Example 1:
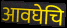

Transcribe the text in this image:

आवघेचि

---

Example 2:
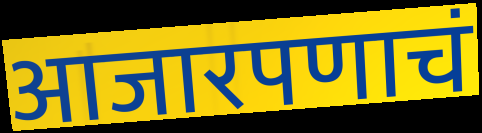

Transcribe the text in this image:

आजारपणाचं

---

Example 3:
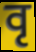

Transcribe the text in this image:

वृ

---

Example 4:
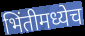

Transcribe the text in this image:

भिंतीमध्येच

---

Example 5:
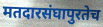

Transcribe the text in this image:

मतदारसंघापुरतेच